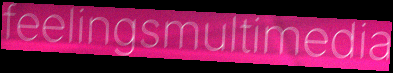
feelingsmultimedia